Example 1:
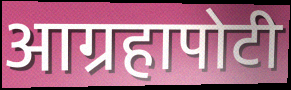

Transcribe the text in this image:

आग्रहापोटी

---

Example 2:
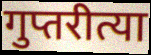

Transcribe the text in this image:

गुप्तरीत्या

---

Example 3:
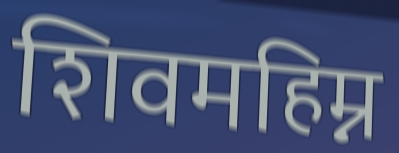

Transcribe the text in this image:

शिवमहिम्न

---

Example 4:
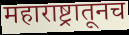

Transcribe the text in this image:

महाराष्ट्रातूनच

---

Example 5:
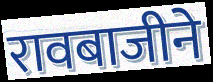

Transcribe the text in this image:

रावबाजीने